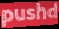
pushd